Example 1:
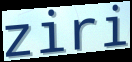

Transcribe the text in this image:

ziri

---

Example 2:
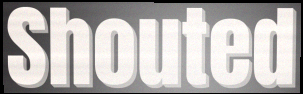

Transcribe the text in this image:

Shouted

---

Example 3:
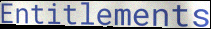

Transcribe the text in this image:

Entitlements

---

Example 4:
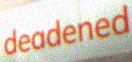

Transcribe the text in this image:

deadened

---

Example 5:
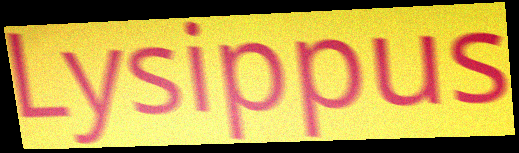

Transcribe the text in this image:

Lysippus